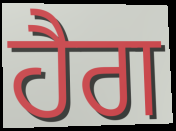
ਹੈਗ